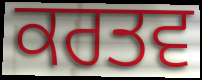
ਕਰਤਵ